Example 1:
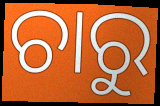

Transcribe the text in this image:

ଚାରୁ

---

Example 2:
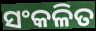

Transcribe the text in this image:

ସଂକଳିତ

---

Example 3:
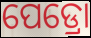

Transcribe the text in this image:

ପେଡ୍ରୋ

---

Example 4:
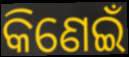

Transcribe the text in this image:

କିଣେଇଁ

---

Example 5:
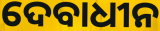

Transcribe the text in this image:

ଦେବାଧୀନ